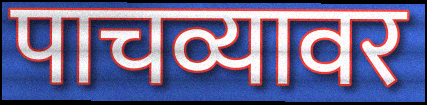
पाचव्यावर